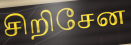
சிறிசேன